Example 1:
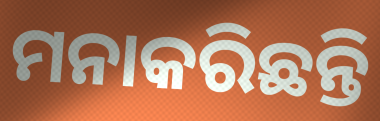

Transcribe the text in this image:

ମନାକରିଛନ୍ତି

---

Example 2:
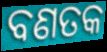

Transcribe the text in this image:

ବଣତକ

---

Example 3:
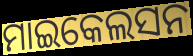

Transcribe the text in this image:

ମାଇକେଲସନ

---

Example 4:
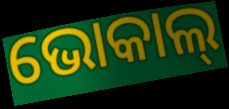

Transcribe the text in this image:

ଭୋକାଲ୍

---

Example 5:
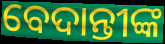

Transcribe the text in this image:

ବେଦାନ୍ତୀଙ୍କ